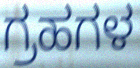
ಗ್ರಹಗಳ